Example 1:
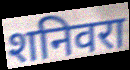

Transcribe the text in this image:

शनिवरा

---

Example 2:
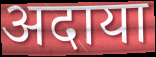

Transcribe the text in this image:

अदाया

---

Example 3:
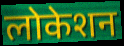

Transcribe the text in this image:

लोकेशन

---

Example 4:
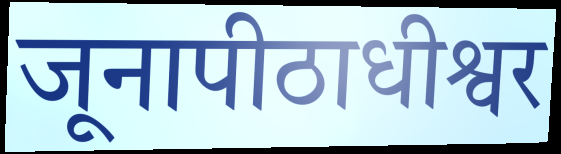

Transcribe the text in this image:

जूनापीठाधीश्वर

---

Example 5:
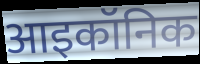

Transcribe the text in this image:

आइकॉनिक